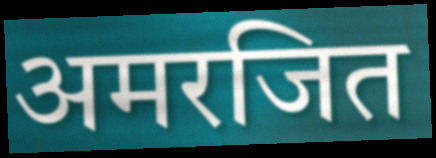
अमरजित